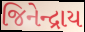
જિનેન્દ્રાય